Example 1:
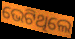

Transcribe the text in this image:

ଭେଟିଥିଲେ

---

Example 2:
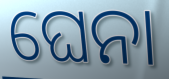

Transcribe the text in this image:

ଘେନା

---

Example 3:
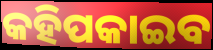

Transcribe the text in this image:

କହିପକାଇବ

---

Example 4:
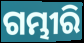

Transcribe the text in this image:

ଗମ୍ଭୀରି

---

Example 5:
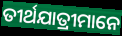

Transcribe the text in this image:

ତୀର୍ଥଯାତ୍ରୀମାନେ